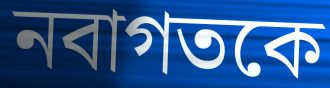
নবাগতকে